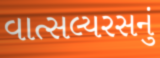
વાત્સલ્યરસનું